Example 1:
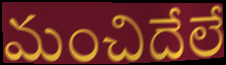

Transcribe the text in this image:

మంచిదేలే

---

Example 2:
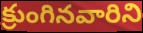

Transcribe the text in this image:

క్రుంగినవారిని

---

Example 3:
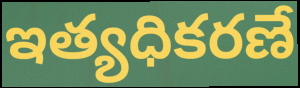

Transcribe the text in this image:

ఇత్యధికరణే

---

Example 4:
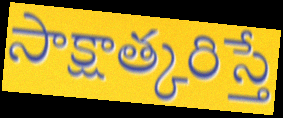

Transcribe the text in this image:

సాక్షాత్కరిస్తే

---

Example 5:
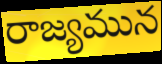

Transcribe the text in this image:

రాజ్యమున